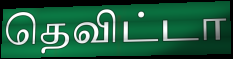
தெவிட்டா